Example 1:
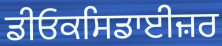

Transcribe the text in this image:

ਡੀਓਕਸਿਡਾਈਜ਼ਰ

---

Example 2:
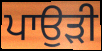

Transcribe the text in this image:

ਪਾਉੜੀ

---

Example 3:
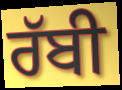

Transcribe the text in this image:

ਰੱਬੀ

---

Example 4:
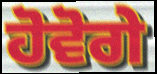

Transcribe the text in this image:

ਹੋਵੋਗੇ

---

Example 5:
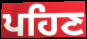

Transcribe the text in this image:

ਪਹਿਣ